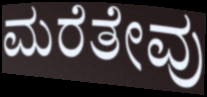
ಮರೆತೇವು